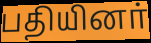
பதியினர்